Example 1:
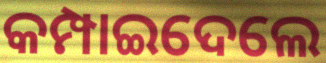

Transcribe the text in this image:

କମ୍ପାଇଦେଲେ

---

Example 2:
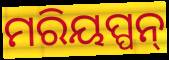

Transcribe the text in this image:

ମରିୟପ୍ପନ୍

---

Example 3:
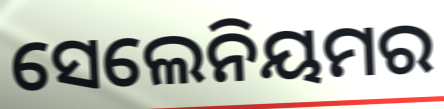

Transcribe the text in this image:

ସେଲେନିୟମର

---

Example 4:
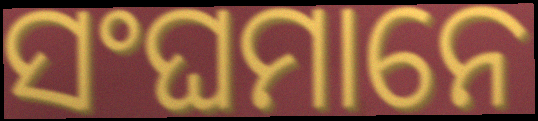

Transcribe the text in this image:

ସଂଘମାନେ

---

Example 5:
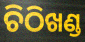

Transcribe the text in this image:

ଚିଠିଖଣ୍ଡ